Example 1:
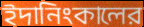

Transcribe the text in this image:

ইদানিংকালের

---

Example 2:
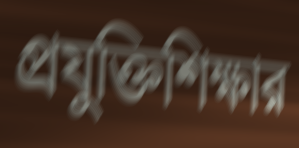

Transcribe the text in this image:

প্রযুক্তিশিক্ষার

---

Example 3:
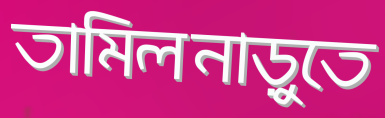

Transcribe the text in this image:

তামিলনাড়ুতে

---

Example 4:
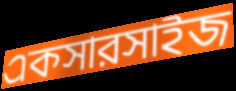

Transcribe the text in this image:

একসারসাইজ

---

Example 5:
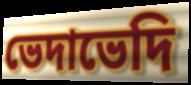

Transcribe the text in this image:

ভেদাভেদি